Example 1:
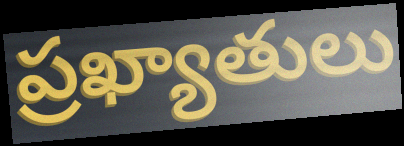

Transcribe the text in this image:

ప్రఖ్యాతులు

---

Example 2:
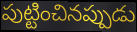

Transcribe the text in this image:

పుట్టించినప్పుడు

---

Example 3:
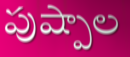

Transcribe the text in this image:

పుష్పాల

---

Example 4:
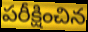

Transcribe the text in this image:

పరీక్షించిన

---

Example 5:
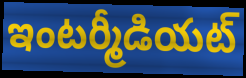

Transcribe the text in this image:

ఇంటర్మీడియట్